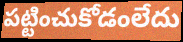
పట్టించుకోడంలేదు